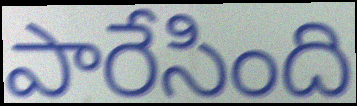
పారేసింది